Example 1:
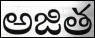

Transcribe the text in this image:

అజిత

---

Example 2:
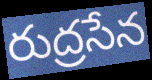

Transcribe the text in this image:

రుద్రసేన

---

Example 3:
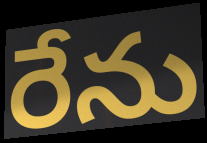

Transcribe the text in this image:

రేను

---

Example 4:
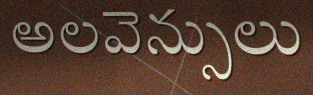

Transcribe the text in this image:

అలవెన్సులు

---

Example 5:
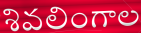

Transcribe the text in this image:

శివలింగాల